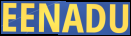
EENADU